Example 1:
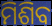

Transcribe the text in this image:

ମିଶିବ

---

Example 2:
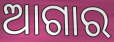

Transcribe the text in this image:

ଆଗାର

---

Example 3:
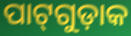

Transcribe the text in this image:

ପାଟ୍‌ଗୁଡ଼ାକ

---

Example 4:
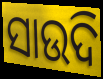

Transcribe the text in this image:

ସାଉଦି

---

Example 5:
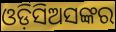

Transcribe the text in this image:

ଓଡ଼ିସିଅସଙ୍କର